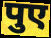
पुए